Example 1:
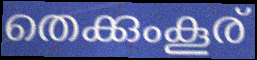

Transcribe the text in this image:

തെക്കുംകൂര്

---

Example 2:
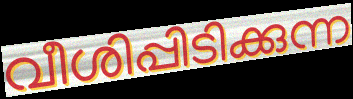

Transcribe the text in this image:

വീശിപ്പിടിക്കുന്ന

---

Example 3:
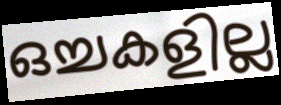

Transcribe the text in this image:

ഒച്ചകളില്ല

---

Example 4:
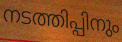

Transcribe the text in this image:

നടത്തിപ്പിനും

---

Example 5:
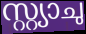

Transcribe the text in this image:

സ്റ്റ്യാചു